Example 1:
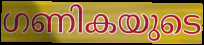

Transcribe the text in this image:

ഗണികയുടെ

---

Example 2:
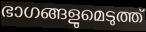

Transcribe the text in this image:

ഭാഗങ്ങളുമെടുത്ത്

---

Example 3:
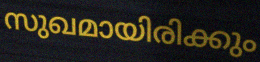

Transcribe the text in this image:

സുഖമായിരിക്കും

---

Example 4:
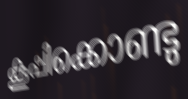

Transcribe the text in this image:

കൂപ്പിക്കൊണ്ടു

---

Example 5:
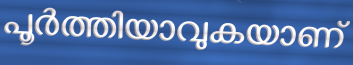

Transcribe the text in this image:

പൂർത്തിയാവുകയാണ്